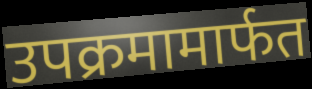
उपक्रमामार्फत